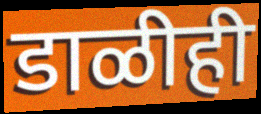
डाळीही